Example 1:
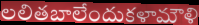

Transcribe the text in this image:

లలితబాలేందుకళామౌళి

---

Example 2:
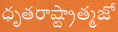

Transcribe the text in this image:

ధృతరాష్ట్రాత్మజో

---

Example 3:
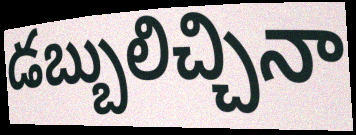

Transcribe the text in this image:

డబ్బులిచ్చినా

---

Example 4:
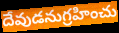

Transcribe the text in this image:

దేవుడనుగ్రహించు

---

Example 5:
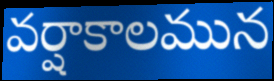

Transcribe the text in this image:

వర్షాకాలమున